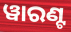
ୱାରଣ୍ଟ